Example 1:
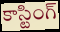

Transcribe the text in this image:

కాస్టింగ్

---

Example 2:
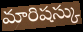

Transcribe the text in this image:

మారిషస్కు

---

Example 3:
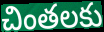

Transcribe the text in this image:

చింతలకు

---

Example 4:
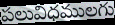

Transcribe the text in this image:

పలువిధములగు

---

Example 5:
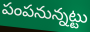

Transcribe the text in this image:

పంపనున్నట్టు